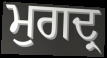
ਮੁਗਦ੍ਰ